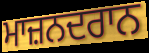
ਮਾਜ਼ਨਦਰਾਨ